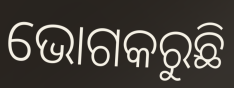
ଭୋଗକରୁଛି